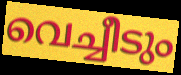
വെച്ചീടും